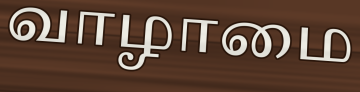
வாழாமை